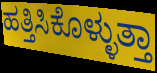
ಹತ್ತಿಸಿಕೊಳ್ಳುತ್ತಾ